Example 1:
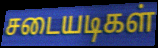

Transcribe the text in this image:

சடையடிகள்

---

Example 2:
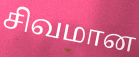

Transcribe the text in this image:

சிவமான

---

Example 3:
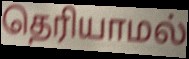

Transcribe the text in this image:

தெரியாமல்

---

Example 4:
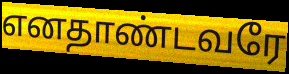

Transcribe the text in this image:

எனதாண்டவரே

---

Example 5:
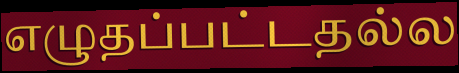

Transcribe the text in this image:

எழுதப்பட்டதல்ல